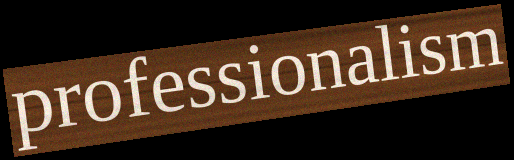
professionalism